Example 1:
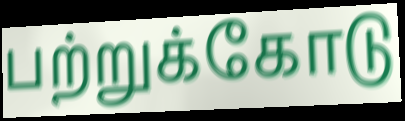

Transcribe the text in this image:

பற்றுக்கோடு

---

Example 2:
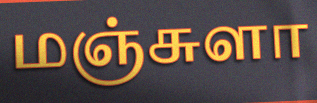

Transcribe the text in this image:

மஞ்சுளா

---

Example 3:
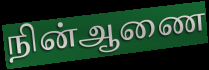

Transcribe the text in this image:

நின்ஆணை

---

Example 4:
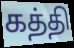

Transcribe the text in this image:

கத்தி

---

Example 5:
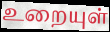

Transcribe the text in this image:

உறையுள்